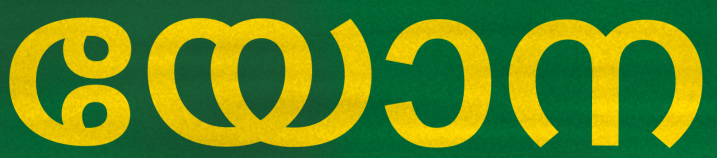
യോന